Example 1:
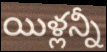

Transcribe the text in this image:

యిళ్లన్నీ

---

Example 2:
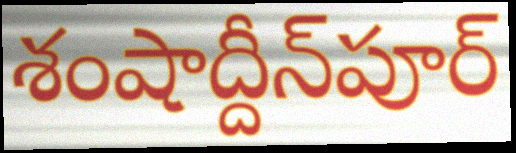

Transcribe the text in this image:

శంషాద్దీన్‌పూర్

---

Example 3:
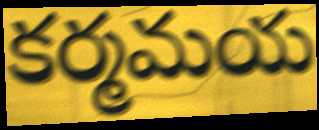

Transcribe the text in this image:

కర్మమయ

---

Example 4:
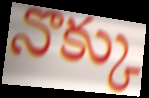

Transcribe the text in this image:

నొక్కు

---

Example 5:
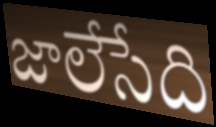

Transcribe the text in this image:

జాలేసేది